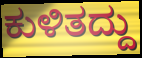
ಕುಳಿತದ್ದು